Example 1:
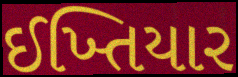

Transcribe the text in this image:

ઈખ્તિયાર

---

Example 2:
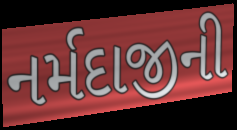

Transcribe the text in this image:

નર્મદાજીની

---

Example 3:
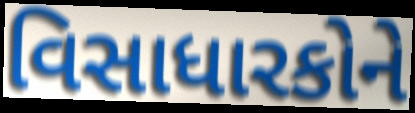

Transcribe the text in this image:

વિસાધારકોને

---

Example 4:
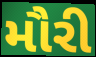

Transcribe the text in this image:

મૌરી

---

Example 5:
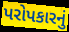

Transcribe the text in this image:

પરોપકારનું